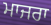
ਮਾਜਰਾ